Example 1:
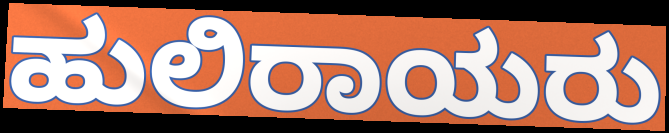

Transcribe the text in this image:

ಹುಲಿರಾಯರು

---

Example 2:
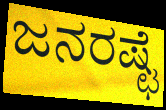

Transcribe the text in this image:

ಜನರಷ್ಟೆ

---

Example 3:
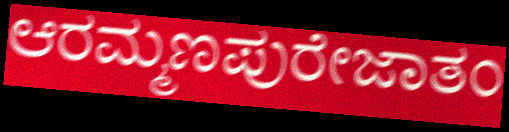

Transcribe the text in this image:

ಆರಮ್ಮಣಪುರೇಜಾತಂ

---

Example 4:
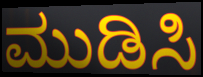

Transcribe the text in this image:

ಮುಡಿಸಿ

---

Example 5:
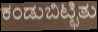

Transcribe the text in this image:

ಕಂಡುಬಿಟ್ಟಿತು